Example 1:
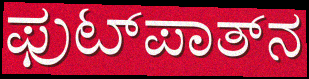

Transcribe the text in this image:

ಫುಟ್‌ಪಾತ್‌ನ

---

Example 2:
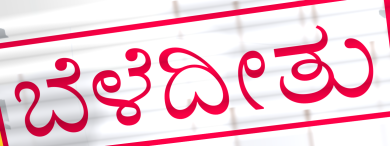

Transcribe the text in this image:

ಬೆಳೆದೀತು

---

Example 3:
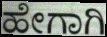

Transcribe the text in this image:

ಹೇಗಾಗಿ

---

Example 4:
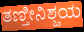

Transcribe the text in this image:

ತಣ್ತೀನಿಶ್ಚಯ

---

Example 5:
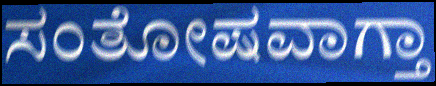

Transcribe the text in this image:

ಸಂತೋಷವಾಗ್ತಾ